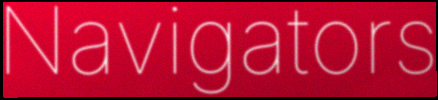
Navigators